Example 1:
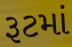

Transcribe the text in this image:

રૂટમાં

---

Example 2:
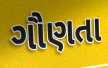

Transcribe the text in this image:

ગૌણતા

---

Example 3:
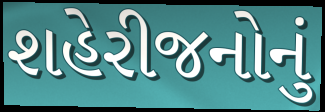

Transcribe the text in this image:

શહેરીજનોનું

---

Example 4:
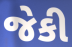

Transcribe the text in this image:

જેકી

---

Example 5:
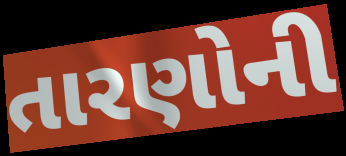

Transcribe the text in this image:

તારણોની